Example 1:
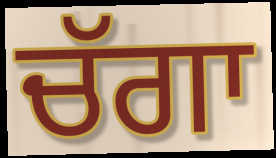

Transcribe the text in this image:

ਚੱਗਾ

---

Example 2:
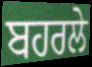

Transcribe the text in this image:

ਬਹਰਲੇ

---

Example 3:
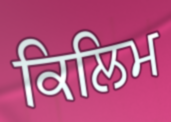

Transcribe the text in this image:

ਕਿਲਿਮ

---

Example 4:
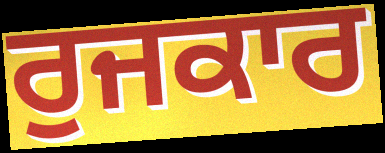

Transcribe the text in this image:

ਰੁਜਕਾਰ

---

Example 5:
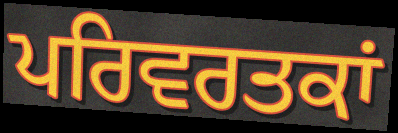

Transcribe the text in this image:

ਪਰਿਵਰਤਕਾਂ